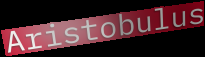
Aristobulus